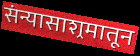
संन्यासाश्रमातून